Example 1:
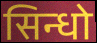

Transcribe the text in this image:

सिन्धो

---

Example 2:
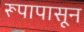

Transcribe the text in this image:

रूपापासून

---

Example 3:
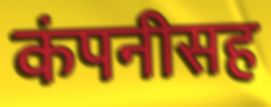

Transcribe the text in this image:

कंपनीसह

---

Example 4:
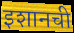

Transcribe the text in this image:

इशानची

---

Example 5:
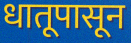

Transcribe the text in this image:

धातूपासून